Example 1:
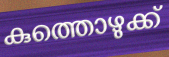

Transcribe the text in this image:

കുത്തൊഴുക്ക്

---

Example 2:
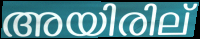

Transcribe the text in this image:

അയിരില്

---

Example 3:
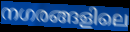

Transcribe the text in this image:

നഗരങ്ങളിലെ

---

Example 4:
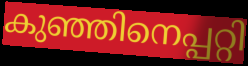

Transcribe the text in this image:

കുഞ്ഞിനെപ്പറ്റി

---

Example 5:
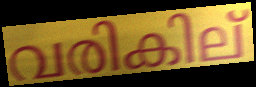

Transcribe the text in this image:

വരികില്